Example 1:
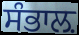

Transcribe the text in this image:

ਸੰਭਾਲ਼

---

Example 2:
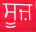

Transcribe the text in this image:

ਸੂਜ਼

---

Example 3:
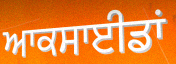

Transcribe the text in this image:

ਆਕਸਾਈਡਾਂ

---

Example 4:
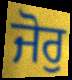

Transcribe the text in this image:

ਜੋਰੁ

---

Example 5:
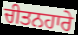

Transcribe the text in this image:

ਚੀਤਨਹਾਰੇ